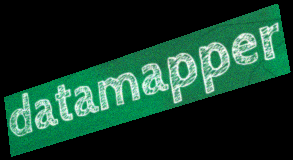
datamapper